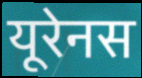
यूरेनस